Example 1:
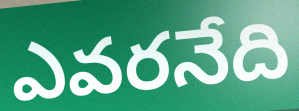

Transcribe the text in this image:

ఎవరనేది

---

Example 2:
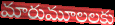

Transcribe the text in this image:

మారుమూలలకు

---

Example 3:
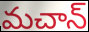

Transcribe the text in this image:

మచాన్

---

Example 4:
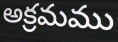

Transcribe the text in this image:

అక్రమము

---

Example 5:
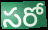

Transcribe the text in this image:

సరో